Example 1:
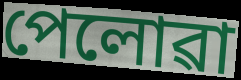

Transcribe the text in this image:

পেলোৱা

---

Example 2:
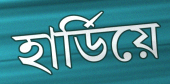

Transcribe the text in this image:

হাৰ্ডিয়ে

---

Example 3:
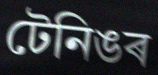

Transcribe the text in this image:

টেনিঙৰ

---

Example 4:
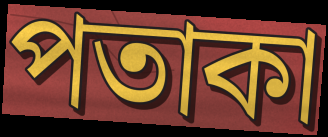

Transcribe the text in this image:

পতাকা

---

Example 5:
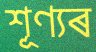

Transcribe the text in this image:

শূণ্যৰ